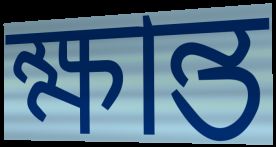
ক্ষান্ত